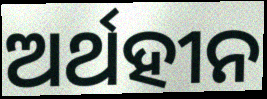
ଅର୍ଥହୀନ